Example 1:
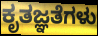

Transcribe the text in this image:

ಕೃತಜ್ಞತೆಗಳು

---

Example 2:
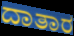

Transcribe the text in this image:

ದಾತಾರ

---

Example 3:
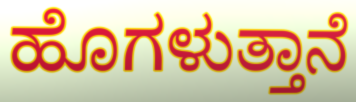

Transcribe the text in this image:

ಹೊಗಳುತ್ತಾನೆ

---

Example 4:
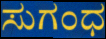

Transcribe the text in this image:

ಸುಗಂಧ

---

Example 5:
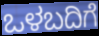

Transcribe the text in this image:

ಒಳಬದಿಗೆ